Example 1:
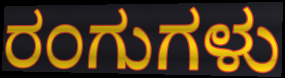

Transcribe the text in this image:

ರಂಗುಗಳು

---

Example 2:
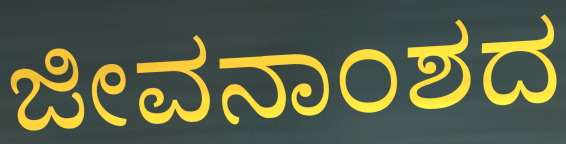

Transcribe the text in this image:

ಜೀವನಾಂಶದ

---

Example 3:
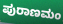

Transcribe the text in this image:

ಪುರಾಣಮಂ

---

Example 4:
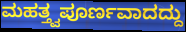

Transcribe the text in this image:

ಮಹತ್ತ್ವಪೂರ್ಣವಾದದ್ದು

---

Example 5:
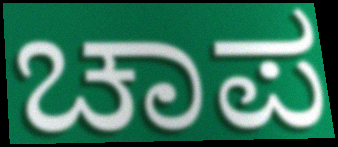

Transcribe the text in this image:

ಚಾಪ